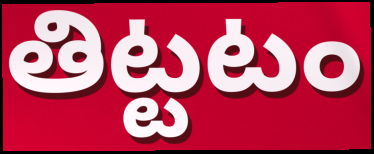
తిట్టటం